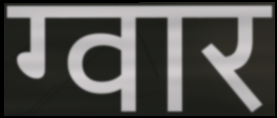
ग्वार